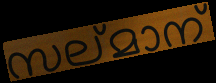
സല്മാന്